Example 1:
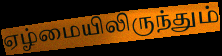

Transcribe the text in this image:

ஏழ்மையிலிருந்தும்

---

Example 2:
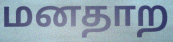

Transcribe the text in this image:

மனதாற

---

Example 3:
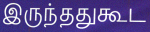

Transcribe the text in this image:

இருந்ததுகூட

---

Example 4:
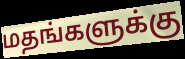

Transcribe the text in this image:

மதங்களுக்கு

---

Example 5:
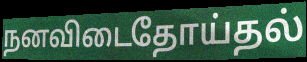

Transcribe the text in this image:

நனவிடைதோய்தல்